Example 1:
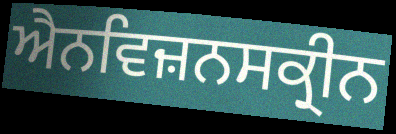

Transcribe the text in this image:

ਐਨਵਿਜ਼ਨਸਕ੍ਰੀਨ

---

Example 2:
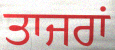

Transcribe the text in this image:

ਤਾਜਰਾਂ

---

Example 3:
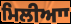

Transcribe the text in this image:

ਮਿਲੀਆਾ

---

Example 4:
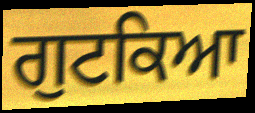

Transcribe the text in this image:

ਗੁਟਕਿਆ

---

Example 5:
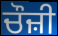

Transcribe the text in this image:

ਚੌਜ਼ੀ